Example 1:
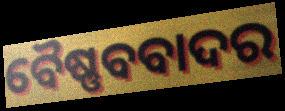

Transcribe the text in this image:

ବୈଷ୍ଣବବାଦର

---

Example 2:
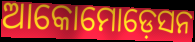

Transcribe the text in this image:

ଆକୋମୋଡ଼େସନ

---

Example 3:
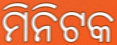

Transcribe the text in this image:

ମିନିଟକ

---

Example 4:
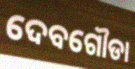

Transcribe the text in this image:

ଦେବଗୌଡା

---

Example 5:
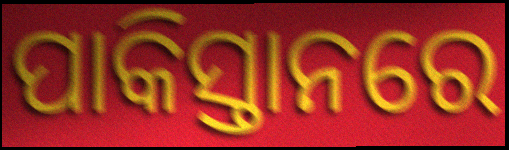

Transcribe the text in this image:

ପାକିସ୍ତାନରେ